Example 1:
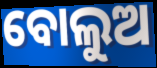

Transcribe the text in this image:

ବୋଲୁଅ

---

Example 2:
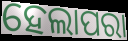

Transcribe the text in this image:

ହେଲାପରା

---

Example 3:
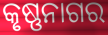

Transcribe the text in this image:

କୃଷ୍ଣନାଗର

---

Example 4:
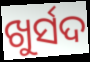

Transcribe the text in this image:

ଖୁର୍ସଦ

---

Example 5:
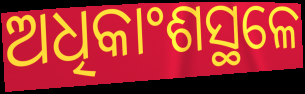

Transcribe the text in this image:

ଅଧିକାଂଶସ୍ଥଳେ